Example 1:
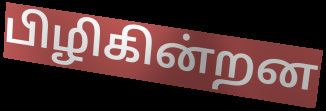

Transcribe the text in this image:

பிழிகின்றன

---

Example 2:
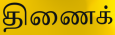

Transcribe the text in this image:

திணைக்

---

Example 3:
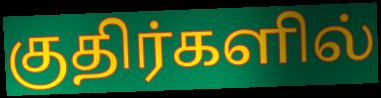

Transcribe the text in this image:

குதிர்களில்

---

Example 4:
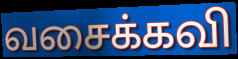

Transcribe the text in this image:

வசைக்கவி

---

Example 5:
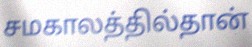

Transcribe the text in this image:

சமகாலத்தில்தான்